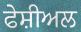
ਫੇਸ਼ੀਅਲ